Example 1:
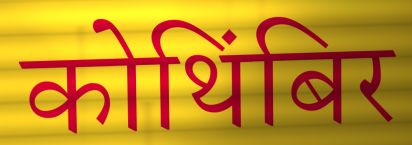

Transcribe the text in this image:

कोथिंबिर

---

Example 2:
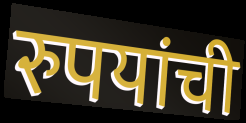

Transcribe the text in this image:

रुपयांची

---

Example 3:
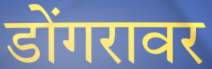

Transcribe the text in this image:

डोंगरावर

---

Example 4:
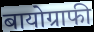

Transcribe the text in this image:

बायोग्राफी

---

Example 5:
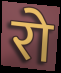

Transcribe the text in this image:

रो